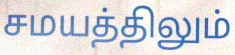
சமயத்திலும்